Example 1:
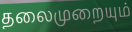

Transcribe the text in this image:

தலைமுறையும்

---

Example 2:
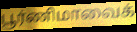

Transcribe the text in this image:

பூர்ணிமாவைக்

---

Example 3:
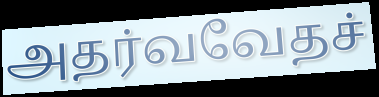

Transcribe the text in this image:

அதர்வவேதச்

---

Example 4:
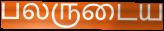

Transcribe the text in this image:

பலருடைய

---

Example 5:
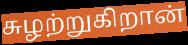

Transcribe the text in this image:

சுழற்றுகிறான்